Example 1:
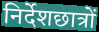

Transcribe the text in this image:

निर्देशछात्रों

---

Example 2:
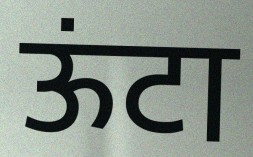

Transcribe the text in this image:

ऊंटा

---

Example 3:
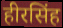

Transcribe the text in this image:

हीरसिंह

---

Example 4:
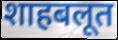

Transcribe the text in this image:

शाहबलूत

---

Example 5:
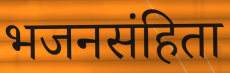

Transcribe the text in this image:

भजनसंहिता